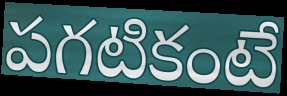
పగటికంటే